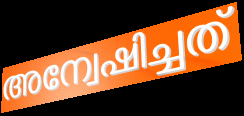
അന്വേഷിച്ചത്